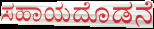
ಸಹಾಯದೊಡನೆ